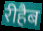
रीहैब